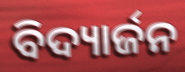
ବିଦ୍ୟାର୍ଜନ